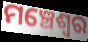
ମଞ୍ଚେଶ୍ଵର